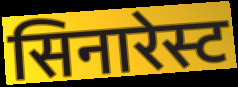
सिनारेस्ट